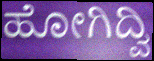
ಹೋಗಿದ್ವಿ